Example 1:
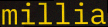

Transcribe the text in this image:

millia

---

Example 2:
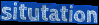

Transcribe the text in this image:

situtation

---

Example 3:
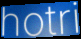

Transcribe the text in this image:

hotri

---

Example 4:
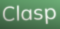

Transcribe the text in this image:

Clasp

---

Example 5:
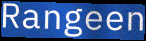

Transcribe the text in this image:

Rangeen